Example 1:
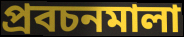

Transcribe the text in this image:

প্রবচনমালা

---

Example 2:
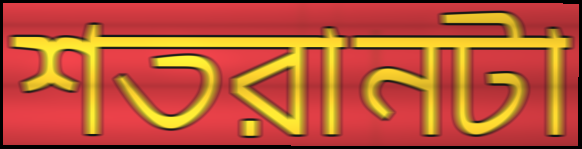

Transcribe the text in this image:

শতরানটা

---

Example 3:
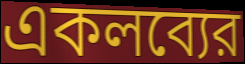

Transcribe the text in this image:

একলব্যের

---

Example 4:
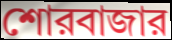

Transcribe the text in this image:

শোরবাজার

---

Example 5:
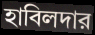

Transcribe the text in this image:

হাবিলদার